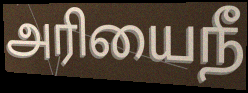
அரியைநீ